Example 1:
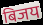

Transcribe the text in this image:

बिजय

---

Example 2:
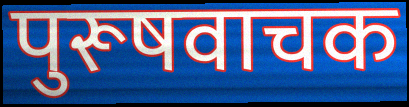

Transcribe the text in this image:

पुरूषवाचक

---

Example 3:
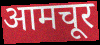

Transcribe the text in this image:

आमचूर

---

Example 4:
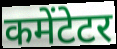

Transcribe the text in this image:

कमेंटेटर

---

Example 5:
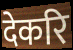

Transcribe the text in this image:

देकरि